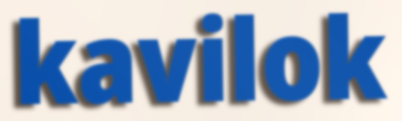
kavilok